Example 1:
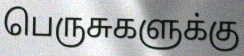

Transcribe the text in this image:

பெருசுகளுக்கு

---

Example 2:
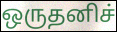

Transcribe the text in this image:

ஒருதனிச்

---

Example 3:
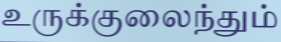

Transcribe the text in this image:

உருக்குலைந்தும்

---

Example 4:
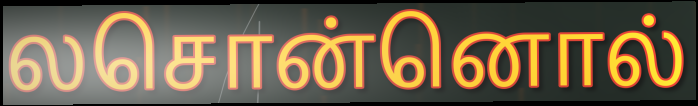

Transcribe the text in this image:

லசொன்னொல்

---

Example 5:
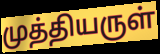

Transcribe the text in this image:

முத்தியருள்